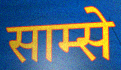
साम्से